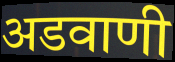
अडवाणी